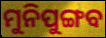
ମୁନିପୁଙ୍ଗବ